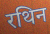
रथिन